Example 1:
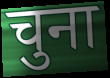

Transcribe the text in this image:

चुना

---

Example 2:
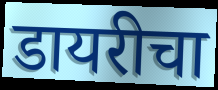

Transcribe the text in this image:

डायरीचा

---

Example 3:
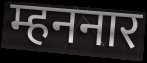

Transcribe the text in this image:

म्हननार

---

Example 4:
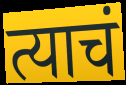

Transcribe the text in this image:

त्याचं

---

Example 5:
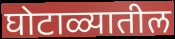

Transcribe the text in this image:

घोटाळ्यातील